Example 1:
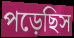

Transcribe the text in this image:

পড়েছিস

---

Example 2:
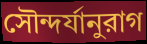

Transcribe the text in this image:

সৌন্দর্যানুরাগ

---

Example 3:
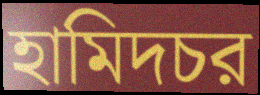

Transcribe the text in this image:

হামিদচর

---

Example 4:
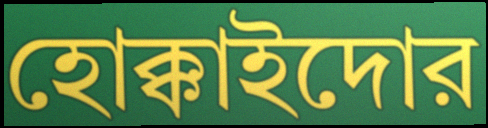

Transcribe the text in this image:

হোক্কাইদোর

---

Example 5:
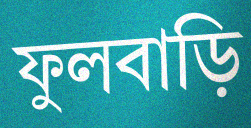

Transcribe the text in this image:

ফুলবাড়ি